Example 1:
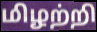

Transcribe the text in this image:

மிழற்றி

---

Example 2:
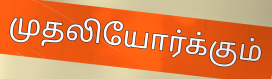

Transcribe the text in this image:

முதலியோர்க்கும்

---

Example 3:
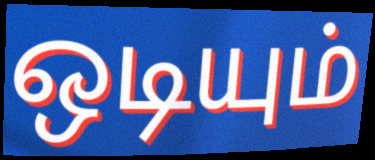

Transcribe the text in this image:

ஒடியும்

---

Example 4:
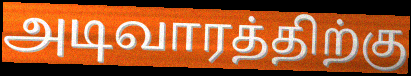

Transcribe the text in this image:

அடிவாரத்திற்கு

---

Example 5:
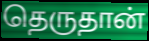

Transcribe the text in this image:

தெருதான்